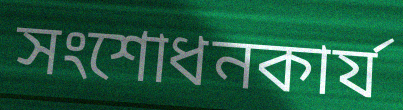
সংশোধনকার্য